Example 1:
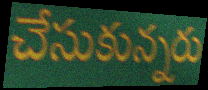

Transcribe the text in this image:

చేసుకున్నరు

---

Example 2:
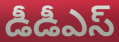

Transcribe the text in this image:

డీడీఎస్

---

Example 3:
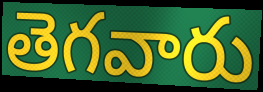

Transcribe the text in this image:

తెగవారు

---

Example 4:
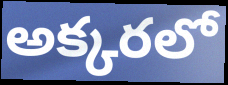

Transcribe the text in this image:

అక్కరలో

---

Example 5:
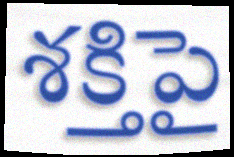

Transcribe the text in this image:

శక్తిపై